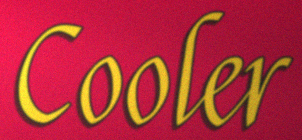
Cooler